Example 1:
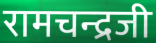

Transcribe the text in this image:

रामचन्द्रजी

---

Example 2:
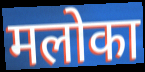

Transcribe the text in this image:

मलोका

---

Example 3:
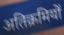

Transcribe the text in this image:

अतिक्रमियों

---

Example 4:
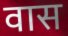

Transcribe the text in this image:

वास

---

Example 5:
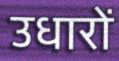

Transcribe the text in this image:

उधारों